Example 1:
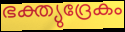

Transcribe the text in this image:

ഭക്ത്യുദ്രേകം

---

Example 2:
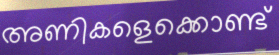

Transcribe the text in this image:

അണികളെക്കൊണ്ട്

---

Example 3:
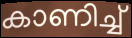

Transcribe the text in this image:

കാണിച്ച്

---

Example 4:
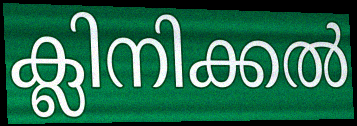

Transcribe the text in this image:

ക്ലിനിക്കൽ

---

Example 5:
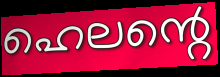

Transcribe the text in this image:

ഹെലന്റെ